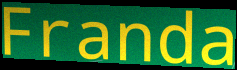
Franda